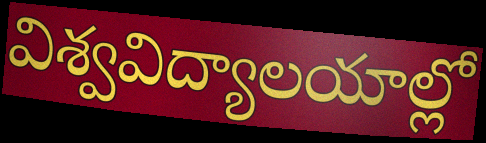
విశ్వవిద్యాలయాల్లో